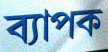
ব্যাপক